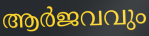
ആർജവവും